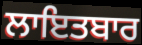
ਲਾਇਤਬਾਰ